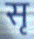
सृ